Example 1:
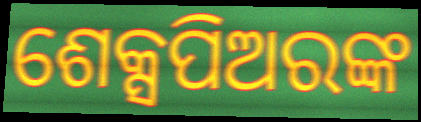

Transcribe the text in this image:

ଶେକ୍ସପିଅରଙ୍କ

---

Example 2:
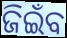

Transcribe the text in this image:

ଜିଇଁବ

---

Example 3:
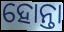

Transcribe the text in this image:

ହୋନ୍ତା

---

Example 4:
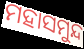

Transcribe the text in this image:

ମହାସମୁନ୍ଦ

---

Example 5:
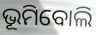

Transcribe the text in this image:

ଭୂମିବୋଲି